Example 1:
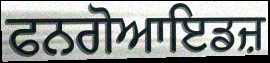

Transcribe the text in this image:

ਫਨਗੋਆਇਡਜ਼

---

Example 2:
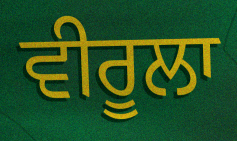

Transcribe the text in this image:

ਵੀਰੂਲਾ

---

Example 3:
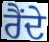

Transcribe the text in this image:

ਰੈਂਦੇ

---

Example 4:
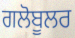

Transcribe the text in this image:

ਗਲੋਬੂਲਰ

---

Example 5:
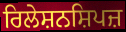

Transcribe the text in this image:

ਰਿਲੇਸ਼ਨਸ਼ਿਪਜ਼